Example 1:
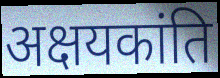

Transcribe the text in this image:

अक्षयकांति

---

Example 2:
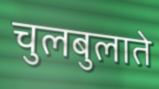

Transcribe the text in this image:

चुलबुलाते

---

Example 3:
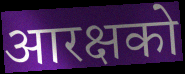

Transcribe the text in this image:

आरक्षको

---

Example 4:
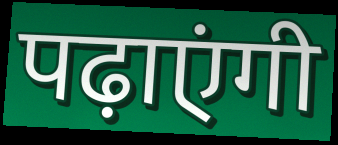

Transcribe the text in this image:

पढ़ाएंगी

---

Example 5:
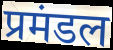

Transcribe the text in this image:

प्रमंडल